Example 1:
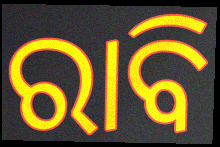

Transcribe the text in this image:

ରାବି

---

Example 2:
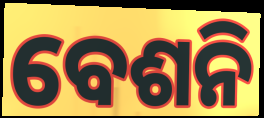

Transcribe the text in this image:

ବେଶନି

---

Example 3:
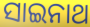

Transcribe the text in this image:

ସାଇନାଥ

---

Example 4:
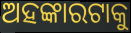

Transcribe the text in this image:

ଅହଙ୍କାରଟାକୁ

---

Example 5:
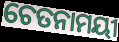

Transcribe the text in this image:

ଚେତନାମୟୀ